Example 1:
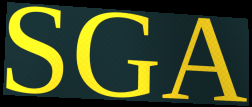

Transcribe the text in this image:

SGA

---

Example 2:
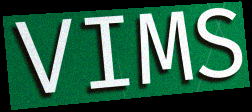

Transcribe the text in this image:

VIMS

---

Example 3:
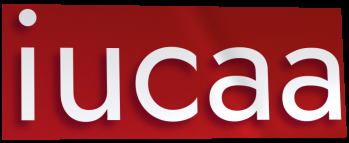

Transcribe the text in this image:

iucaa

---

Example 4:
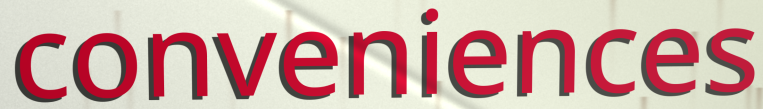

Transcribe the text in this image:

conveniences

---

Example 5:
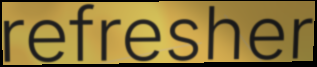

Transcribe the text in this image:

refresher